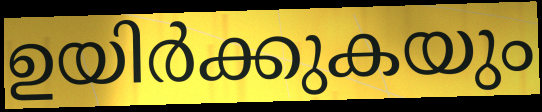
ഉയിർക്കുകയും